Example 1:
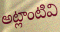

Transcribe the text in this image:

అట్లాంటివి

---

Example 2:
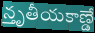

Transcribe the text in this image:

న్తృతీయకాణ్డే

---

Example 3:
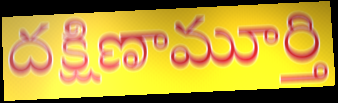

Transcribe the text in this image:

దక్షిణామూర్తి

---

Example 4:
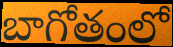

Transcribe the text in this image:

బాగోతంలో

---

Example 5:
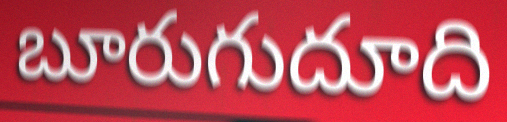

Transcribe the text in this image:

బూరుగుదూది